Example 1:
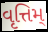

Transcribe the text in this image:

વૃત્તિમ્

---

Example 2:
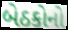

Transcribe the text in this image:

બેઠકોનો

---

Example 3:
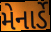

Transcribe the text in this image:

મેનાર્ડે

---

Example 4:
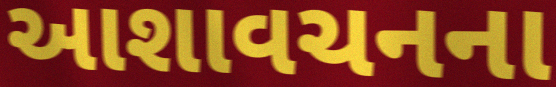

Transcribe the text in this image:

આશાવચનના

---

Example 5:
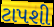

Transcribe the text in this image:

ટાપશી